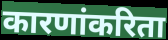
कारणांकरिता